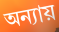
অন্যায়